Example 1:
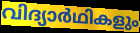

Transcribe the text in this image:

വിദ്യാർഥികളും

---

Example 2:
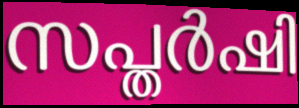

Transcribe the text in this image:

സപ്തർഷി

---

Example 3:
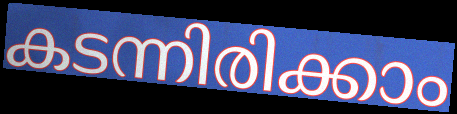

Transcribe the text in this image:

കടന്നിരിക്കാം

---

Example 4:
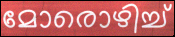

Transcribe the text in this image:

മോരൊഴിച്ച്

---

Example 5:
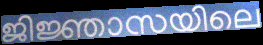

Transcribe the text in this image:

ജിജ്ഞാസയിലെ